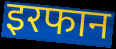
इरफान